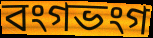
বংগভংগ